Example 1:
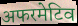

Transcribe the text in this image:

अफरमेटिव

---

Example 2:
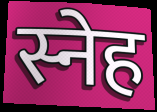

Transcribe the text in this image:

स्नेह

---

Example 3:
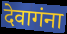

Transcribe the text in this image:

देवागंना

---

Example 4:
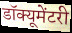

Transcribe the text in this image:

डॉक्यूमेंटरी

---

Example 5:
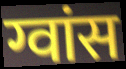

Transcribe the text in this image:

ग्वांस